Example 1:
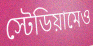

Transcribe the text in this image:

স্টেডিয়ামেও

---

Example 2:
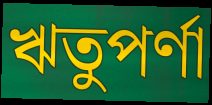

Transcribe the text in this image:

ঋতুপর্ণা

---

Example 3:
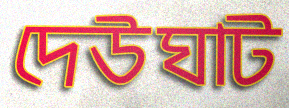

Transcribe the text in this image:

দেউঘাট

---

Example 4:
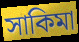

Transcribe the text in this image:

সাকিমা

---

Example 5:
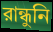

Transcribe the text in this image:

রান্ধুনি